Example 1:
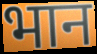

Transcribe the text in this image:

भान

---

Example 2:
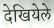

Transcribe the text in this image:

देखियेले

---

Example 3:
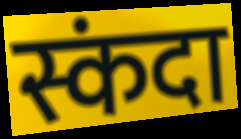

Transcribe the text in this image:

स्कंदा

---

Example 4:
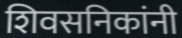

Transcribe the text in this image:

शिवसनिकांनी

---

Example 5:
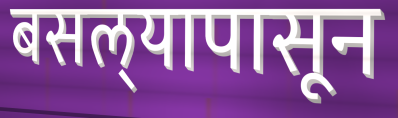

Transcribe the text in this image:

बसल्यापासून